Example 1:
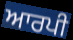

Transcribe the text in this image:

ਆਰਪੀ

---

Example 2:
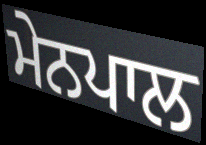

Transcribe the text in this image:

ਮੇਨਪਾਲ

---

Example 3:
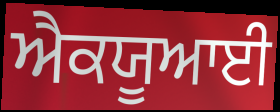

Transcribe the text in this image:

ਐਕਯੂਆਈ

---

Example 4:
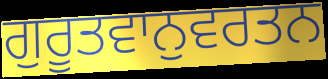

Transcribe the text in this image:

ਗੁਰੂਤਵਾਨੁਵਰਤਨ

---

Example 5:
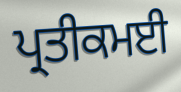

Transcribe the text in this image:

ਪ੍ਰਤੀਕਮਈ